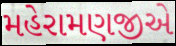
મહેરામણજીએ